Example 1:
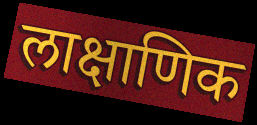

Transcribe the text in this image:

लाक्षाणिक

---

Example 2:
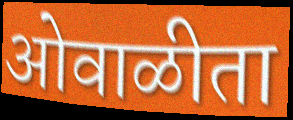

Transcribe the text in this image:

ओवाळीता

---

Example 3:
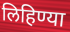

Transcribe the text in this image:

लिहिण्या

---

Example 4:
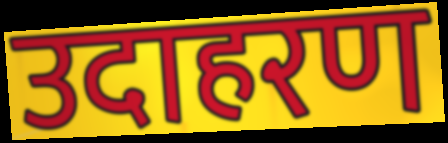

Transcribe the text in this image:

उदाहरण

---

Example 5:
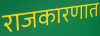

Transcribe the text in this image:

राजकारणात